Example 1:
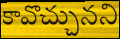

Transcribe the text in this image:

కావొచ్చునని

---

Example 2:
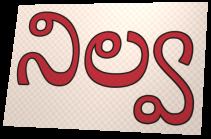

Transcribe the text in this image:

నిల్వ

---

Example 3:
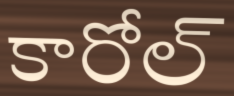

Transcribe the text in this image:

కారోల్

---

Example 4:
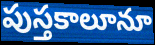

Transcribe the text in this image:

పుస్తకాలూనూ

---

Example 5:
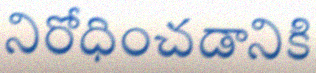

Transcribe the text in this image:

నిరోధించడానికి